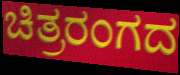
ಚಿತ್ರರಂಗದ